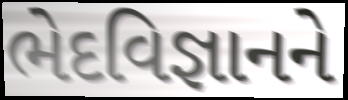
ભેદવિજ્ઞાનને